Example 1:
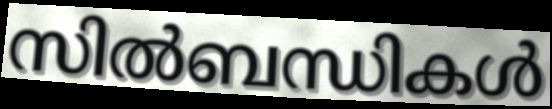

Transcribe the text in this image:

സിൽബന്ധികൾ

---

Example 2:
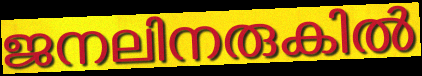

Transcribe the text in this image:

ജനലിനരുകിൽ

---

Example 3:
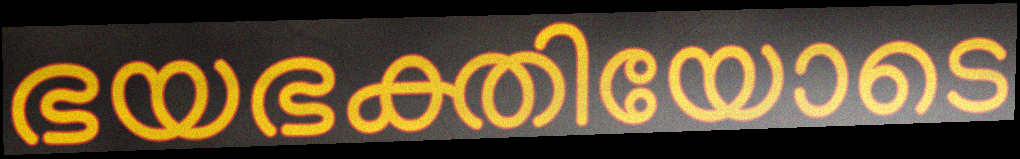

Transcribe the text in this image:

ഭയഭക്തിയോടെ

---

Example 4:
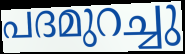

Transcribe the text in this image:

പദമുറച്ചു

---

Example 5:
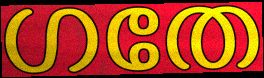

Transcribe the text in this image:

ഗതേ